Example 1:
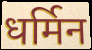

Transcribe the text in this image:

धर्मिन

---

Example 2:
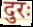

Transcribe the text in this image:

दुरः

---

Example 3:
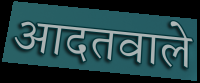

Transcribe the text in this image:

आदतवाले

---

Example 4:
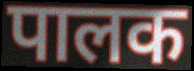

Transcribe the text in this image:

पालक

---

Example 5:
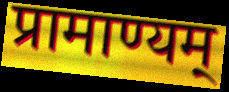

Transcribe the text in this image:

प्रामाण्यम्